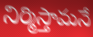
నిర్మిస్తామనే